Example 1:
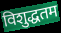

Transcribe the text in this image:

विशुद्धतम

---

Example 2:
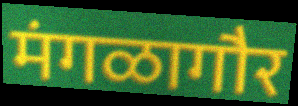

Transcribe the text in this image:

मंगळागौर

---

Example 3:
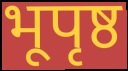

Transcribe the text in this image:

भूपृष्ठ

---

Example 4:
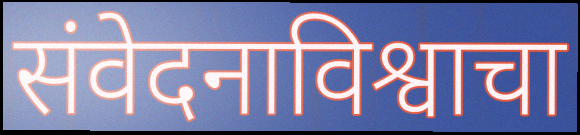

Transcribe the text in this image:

संवेदनाविश्वाचा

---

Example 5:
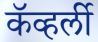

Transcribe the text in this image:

कॅव्हर्ली